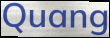
Quang